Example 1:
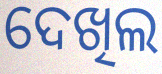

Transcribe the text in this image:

ଦେଖିଲ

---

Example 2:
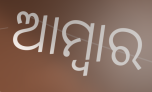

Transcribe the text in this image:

ଆମ୍ବାର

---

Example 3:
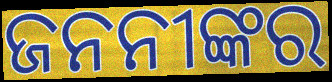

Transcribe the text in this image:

ଜନନୀଙ୍କର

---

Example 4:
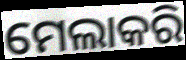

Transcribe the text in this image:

ମେଲାକରି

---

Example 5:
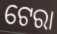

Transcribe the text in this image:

ଟେରା